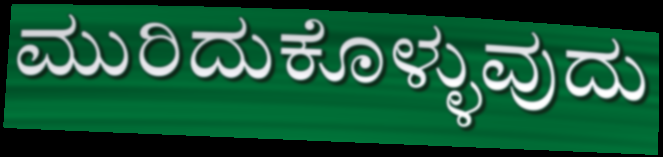
ಮುರಿದುಕೊಳ್ಳುವುದು